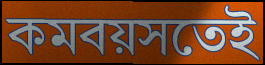
কমবয়সতেই